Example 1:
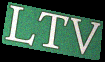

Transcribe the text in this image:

LTV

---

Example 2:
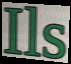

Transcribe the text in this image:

Ils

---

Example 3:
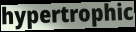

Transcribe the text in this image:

hypertrophic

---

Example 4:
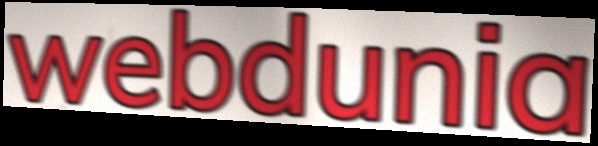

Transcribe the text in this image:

webdunia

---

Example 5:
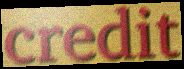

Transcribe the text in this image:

credit